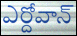
ఎర్దోవాన్